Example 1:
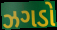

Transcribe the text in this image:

ઝગડો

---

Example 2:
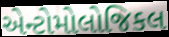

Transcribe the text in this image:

એન્ટોમોલોજિકલ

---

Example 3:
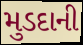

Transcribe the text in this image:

મુડદાની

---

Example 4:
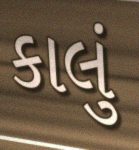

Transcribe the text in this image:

કાલું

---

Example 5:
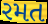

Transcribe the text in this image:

રમત